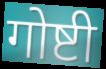
गोष्टी